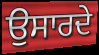
ਉਸਾਰਦੇ